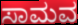
ಸಾಮವ